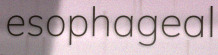
esophageal